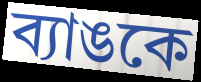
ব্যাঙকে